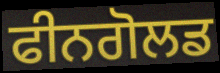
ਫੀਨਗੋਲਡ